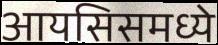
आयसिसमध्ये